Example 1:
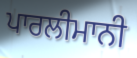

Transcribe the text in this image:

ਪਾਰਲੀਮਾਨੀ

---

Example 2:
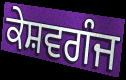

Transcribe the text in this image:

ਕੇਸ਼ਵਗੰਜ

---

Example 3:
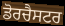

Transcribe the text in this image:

ਡੋਰਚੈਸਟਰ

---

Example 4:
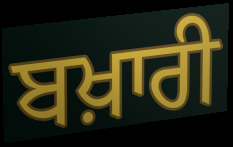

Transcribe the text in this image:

ਬਖ਼ਾਰੀ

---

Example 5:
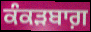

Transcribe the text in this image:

ਕੰਕੜਬਾਗ਼